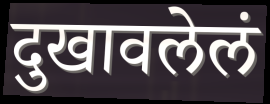
दुखावलेलं